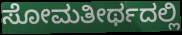
ಸೋಮತೀರ್ಥದಲ್ಲಿ